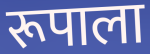
रूपाला